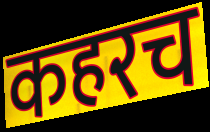
कहरच